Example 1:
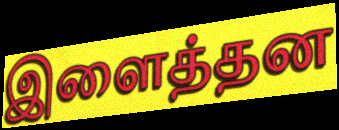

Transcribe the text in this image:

இளைத்தன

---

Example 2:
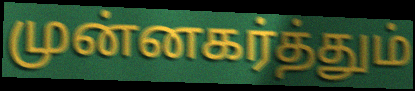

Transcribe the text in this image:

முன்னகர்த்தும்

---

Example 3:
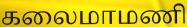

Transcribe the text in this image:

கலைமாமணி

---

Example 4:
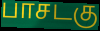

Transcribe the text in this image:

பாசடகு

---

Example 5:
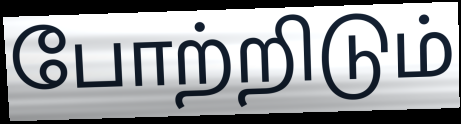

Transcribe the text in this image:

போற்றிடும்